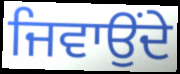
ਜਿਵਾਉਂਦੇ